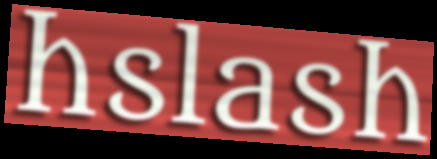
hslash